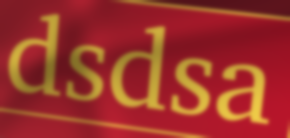
dsdsa